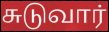
சுடுவார்